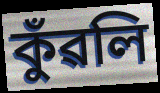
কুঁৱলি